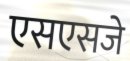
एसएसजे